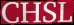
CHSL